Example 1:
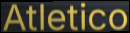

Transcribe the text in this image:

Atletico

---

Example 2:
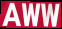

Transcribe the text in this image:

AWW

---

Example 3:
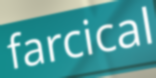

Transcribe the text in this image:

farcical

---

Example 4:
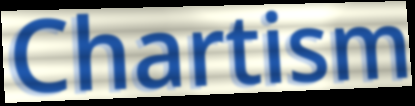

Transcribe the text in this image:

Chartism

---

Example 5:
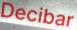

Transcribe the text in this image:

Decibar